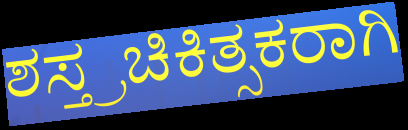
ಶಸ್ತ್ರಚಿಕಿತ್ಸಕರಾಗಿ